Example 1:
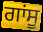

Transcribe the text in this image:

ਗਾਂਸੂ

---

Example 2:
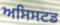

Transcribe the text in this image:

ਅਸਿਸਟਡ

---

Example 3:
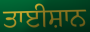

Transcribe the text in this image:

ਤਾਈਸ਼ਾਨ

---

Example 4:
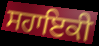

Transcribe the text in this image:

ਸਹਾਇਕੀ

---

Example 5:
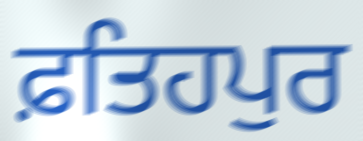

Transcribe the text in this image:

ਫ਼ਤਿਹਪੁਰ